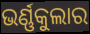
ଭର୍ଣ୍ଣକୁଲାର